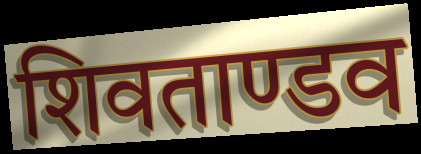
शिवताण्डव